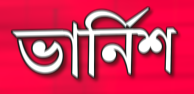
ভার্নিশ